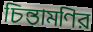
চিন্তামণির